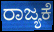
ರಾಜ್ಯಕೆ